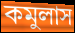
কমুলাস